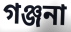
গঞ্জনা